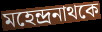
মহেন্দ্রনাথকে